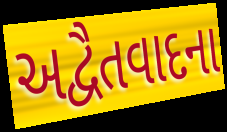
અદ્વૈતવાદના